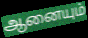
ஆனையும்